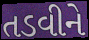
તડવીને